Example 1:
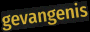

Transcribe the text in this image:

gevangenis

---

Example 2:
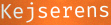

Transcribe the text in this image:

Kejserens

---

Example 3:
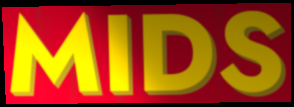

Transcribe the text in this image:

MIDS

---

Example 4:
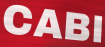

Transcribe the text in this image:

CABI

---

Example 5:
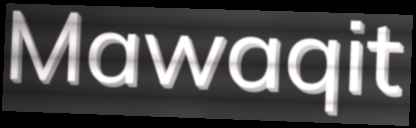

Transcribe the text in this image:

Mawaqit